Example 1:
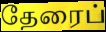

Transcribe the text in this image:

தேரைப்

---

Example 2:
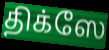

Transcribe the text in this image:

திக்ஸே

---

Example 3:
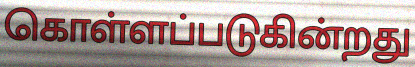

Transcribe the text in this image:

கொள்ளப்படுகின்றது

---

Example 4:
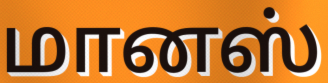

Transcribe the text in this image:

மானஸ்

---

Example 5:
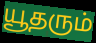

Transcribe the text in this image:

யூதரும்